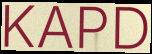
KAPD